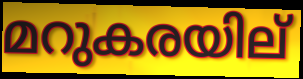
മറുകരയില്